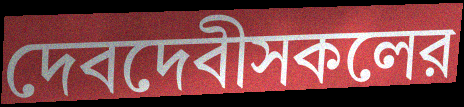
দেবদেবীসকলের